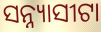
ସନ୍ନ୍ୟାସୀଟା